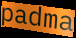
padma